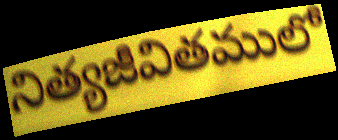
నిత్యజీవితములో